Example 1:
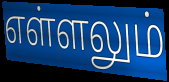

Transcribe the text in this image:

எள்ளலும்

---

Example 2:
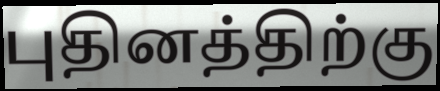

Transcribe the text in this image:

புதினத்திற்கு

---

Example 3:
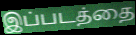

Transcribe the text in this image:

இப்படத்தை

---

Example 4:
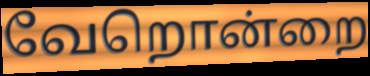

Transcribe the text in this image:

வேறொன்றை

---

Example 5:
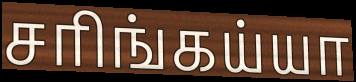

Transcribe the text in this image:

சரிங்கய்யா